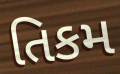
તિકમ